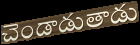
చెండాడుతాడు